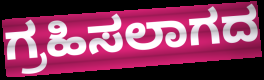
ಗ್ರಹಿಸಲಾಗದ